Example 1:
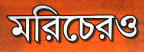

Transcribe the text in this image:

মরিচেরও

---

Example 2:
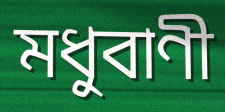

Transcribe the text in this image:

মধুবাণী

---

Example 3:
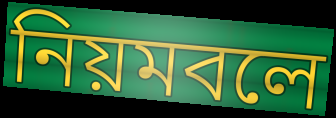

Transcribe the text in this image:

নিয়মবলে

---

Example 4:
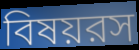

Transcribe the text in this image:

বিষয়রস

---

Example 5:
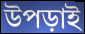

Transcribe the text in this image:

উপড়াই